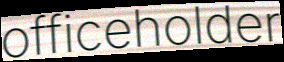
officeholder